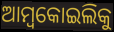
ଆମ୍ବକୋଇଲିକୁ